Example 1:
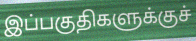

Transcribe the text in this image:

இப்பகுதிகளுக்குச்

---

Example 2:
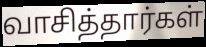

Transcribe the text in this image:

வாசித்தார்கள்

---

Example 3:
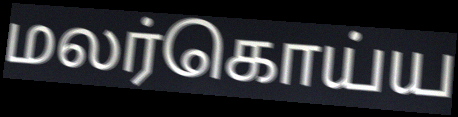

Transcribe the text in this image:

மலர்கொய்ய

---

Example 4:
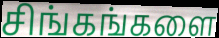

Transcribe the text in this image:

சிங்கங்களை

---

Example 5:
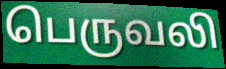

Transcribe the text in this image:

பெருவலி